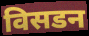
विसडन